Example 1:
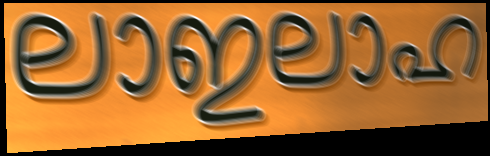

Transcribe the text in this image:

ലാഇലാഹ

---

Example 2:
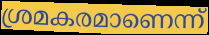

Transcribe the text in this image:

ശ്രമകരമാണെന്ന്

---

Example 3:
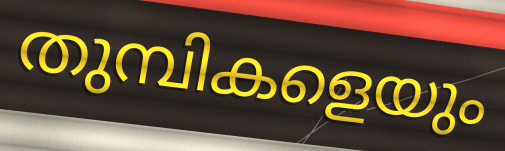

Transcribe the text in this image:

തുമ്പികളെയും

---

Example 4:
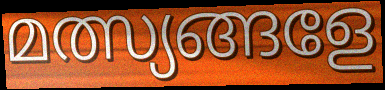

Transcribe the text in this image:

മത്സ്യങ്ങളേ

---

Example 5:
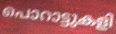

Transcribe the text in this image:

പൊറാട്ടുകളി